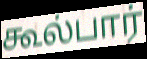
கூல்பார்